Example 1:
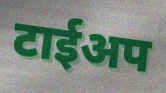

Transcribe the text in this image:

टाईअप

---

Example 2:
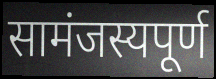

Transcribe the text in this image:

सामंजस्यपूर्ण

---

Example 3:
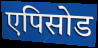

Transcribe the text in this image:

एपिसोड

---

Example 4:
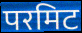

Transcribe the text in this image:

परमिट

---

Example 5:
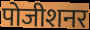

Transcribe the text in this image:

पोजीशनर